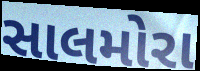
સાલમોરા